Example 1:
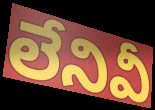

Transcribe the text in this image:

లేనివీ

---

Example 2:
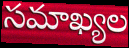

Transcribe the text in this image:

సమాఖ్యల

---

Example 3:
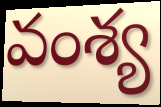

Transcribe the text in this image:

వంశ్య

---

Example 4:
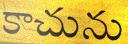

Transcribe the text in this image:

కాచును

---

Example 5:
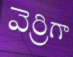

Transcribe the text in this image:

వెర్రిగా